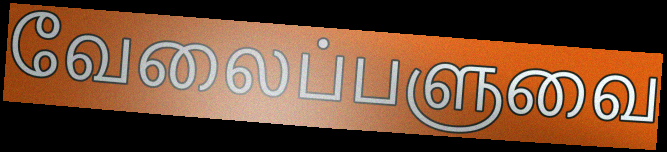
வேலைப்பளுவை